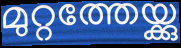
മുറ്റത്തേയ്ക്കു